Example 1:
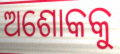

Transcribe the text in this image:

ଅଶୋକକୁ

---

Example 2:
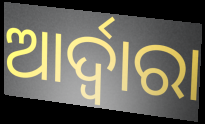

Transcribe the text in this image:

ଆର୍ଦ୍ୱାରା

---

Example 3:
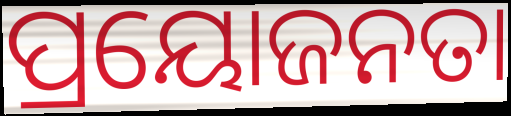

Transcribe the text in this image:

ପ୍ରୟୋଜନତା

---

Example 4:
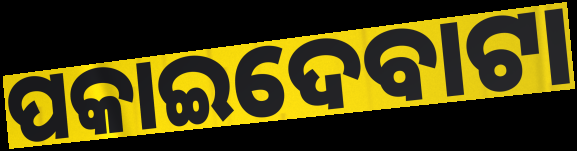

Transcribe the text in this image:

ପକାଇଦେବାଟା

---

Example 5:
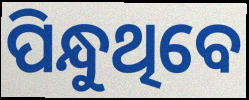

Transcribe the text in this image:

ପିନ୍ଧୁଥିବେ